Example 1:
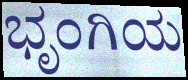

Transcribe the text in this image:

ಭೃಂಗಿಯ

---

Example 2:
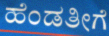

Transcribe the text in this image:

ಹೆಂಡತೀಗೆ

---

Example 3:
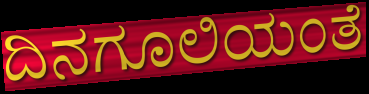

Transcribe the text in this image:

ದಿನಗೂಲಿಯಂತೆ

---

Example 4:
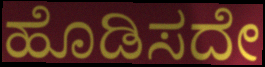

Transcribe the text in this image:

ಹೊಡಿಸದೇ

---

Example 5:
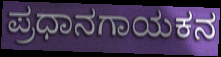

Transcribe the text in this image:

ಪ್ರಧಾನಗಾಯಕನ